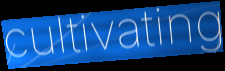
cultivating